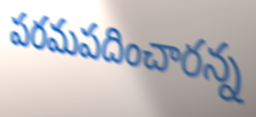
పరమపదించారన్న